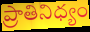
ప్రాతినిధ్యం